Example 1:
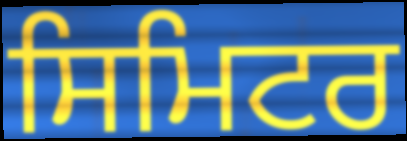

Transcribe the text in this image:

ਸਿਮਿਟਰ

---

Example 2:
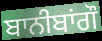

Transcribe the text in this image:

ਬਾਨੀਬਾਂਗੌ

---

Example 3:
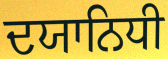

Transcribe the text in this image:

ਦਯਾਨਿਧੀ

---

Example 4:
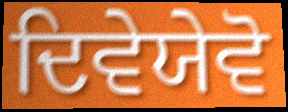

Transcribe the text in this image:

ਦਿਵੇਯੇਵੋ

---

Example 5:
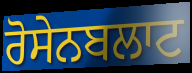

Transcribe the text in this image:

ਰੋਸੇਨਬਲਾਟ